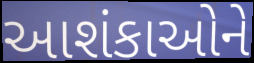
આશંકાઓને